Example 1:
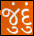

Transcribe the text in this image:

જુંદું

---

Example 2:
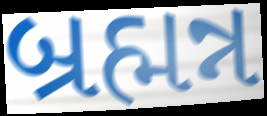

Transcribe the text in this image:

બ્રહ્મન્ન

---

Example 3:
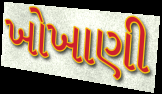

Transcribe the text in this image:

ખોખાણી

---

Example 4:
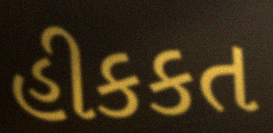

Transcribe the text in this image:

હીકકત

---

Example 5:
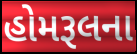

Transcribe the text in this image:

હોમરૂલના